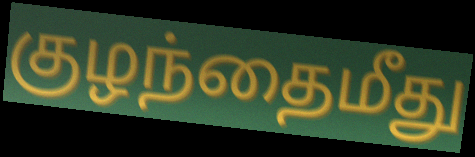
குழந்தைமீது